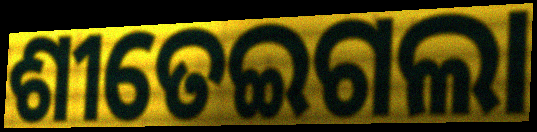
ଶୀତେଇଗଲା